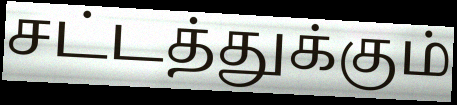
சட்டத்துக்கும்